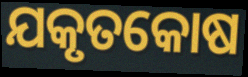
ଯକୃତକୋଷ